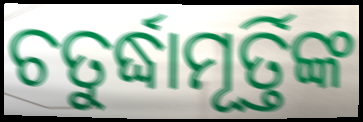
ଚତୁର୍ଦ୍ଧାମୂର୍ତ୍ତିଙ୍କ